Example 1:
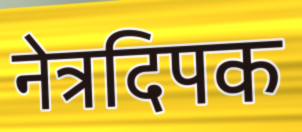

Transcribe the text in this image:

नेत्रदिपक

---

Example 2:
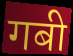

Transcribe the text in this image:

गबी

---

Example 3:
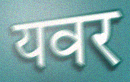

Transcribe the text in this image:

यवर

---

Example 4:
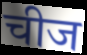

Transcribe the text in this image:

चीज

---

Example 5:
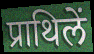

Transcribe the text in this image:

प्राथिलें